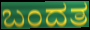
ಬಂದತ